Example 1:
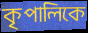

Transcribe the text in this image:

কৃপালিকে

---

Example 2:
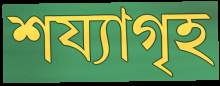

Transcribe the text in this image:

শয্যাগৃহ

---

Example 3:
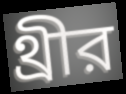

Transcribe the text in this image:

থ্রীর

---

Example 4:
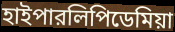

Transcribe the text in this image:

হাইপারলিপিডেমিয়া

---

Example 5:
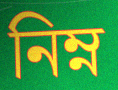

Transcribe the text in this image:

নিম্ন